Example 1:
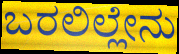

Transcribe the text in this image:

ಬರಲಿಲ್ಲೇನು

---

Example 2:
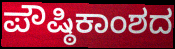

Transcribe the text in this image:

ಪೌಷ್ಠಿಕಾಂಶದ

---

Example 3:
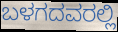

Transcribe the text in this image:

ಬಳಗದವರಲ್ಲಿ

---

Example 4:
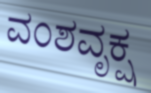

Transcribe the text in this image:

ವಂಶವೃಕ್ಷ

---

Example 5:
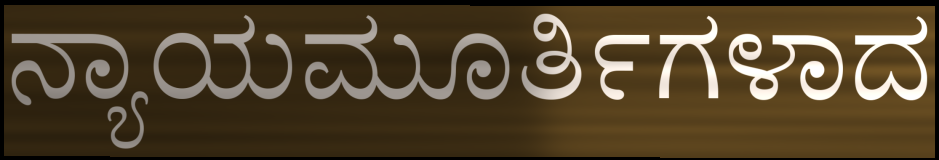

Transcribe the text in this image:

ನ್ಯಾಯಮೂರ್ತಿಗಳಾದ